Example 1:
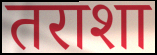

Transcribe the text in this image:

तराशा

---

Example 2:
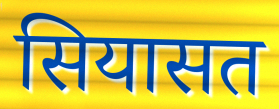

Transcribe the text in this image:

सियासत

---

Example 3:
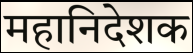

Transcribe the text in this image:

महानिदेशक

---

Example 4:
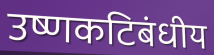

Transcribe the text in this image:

उष्णकटिबंधीय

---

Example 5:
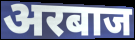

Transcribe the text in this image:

अरबाज